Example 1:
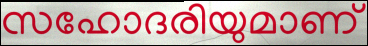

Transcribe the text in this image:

സഹോദരിയുമാണ്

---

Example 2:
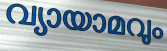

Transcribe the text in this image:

വ്യായാമവും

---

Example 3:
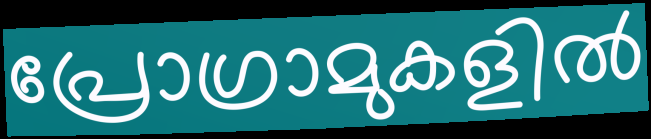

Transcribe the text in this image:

പ്രോഗ്രാമുകളിൽ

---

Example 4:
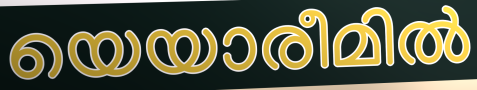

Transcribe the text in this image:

യെയാരീമിൽ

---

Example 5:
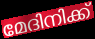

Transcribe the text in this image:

മേദിനിക്ക്